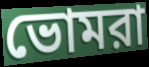
ভোমরা